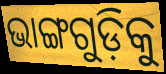
ଭାଙ୍ଗଗୁଡ଼ିକୁ